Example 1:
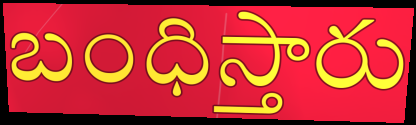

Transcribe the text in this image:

బంధిస్తారు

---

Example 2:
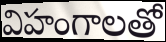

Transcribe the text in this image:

విహంగాలతో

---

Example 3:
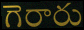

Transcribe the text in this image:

గెరారు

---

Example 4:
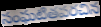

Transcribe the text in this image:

సంఘటితపరచిన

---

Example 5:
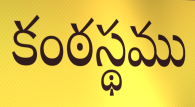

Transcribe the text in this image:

కంఠస్థము